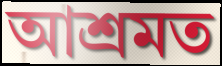
আশ্ৰমত